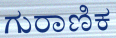
ಗುರಾಣಿಕ